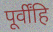
पूर्वींहि